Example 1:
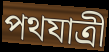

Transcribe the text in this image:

পথযাত্রী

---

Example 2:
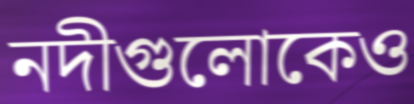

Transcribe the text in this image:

নদীগুলোকেও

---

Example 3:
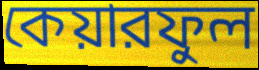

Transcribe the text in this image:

কেয়ারফুল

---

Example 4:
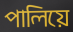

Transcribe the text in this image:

পালিয়ে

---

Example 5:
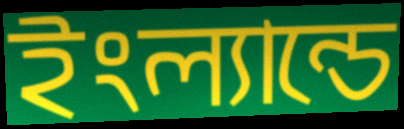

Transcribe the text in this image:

ইংল্যান্ডে